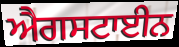
ਐਗਸਟਾਈਨ